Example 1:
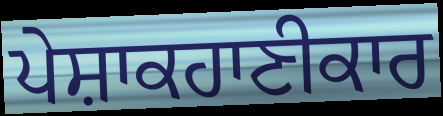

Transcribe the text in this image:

ਪੇਸ਼ਾਕਹਾਣੀਕਾਰ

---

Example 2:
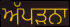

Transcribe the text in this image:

ਅੱਪੜਨਾ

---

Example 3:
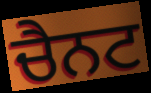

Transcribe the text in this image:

ਚੈਨਟ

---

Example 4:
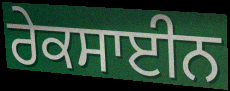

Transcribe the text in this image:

ਰੇਕਸਾਈਨ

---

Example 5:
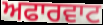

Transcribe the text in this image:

ਅਫਾਰਵਾਟ